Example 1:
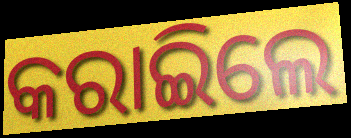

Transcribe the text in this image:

କରାଇିଲେ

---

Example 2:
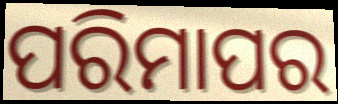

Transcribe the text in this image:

ପରିମାପର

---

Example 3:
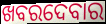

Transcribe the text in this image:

ଖବରଦେବାର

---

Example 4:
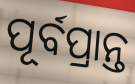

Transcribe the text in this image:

ପୂର୍ବପ୍ରାନ୍ତ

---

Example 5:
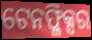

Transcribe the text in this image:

ଟେନଫ୍ଳିକ୍ସର